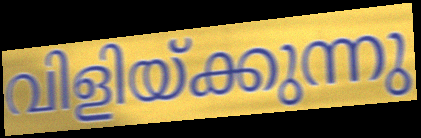
വിളിയ്ക്കുന്നു